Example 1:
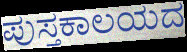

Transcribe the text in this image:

ಪುಸ್ತಕಾಲಯದ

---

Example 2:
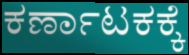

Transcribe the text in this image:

ಕರ್ಣಾಟಕಕ್ಕೆ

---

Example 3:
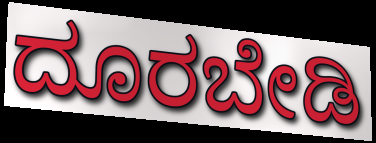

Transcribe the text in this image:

ದೂರಬೇಡಿ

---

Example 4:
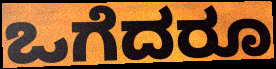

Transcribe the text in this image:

ಒಗೆದರೂ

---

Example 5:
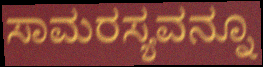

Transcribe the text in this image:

ಸಾಮರಸ್ಯವನ್ನೂ